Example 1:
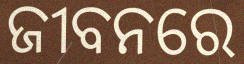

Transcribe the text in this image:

ଜୀବନରେ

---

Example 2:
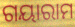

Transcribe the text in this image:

ଗୟାରାମ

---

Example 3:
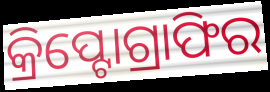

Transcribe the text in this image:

କ୍ରିପ୍ଟୋଗ୍ରାଫିର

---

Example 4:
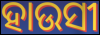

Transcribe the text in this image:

ହାଉସୀ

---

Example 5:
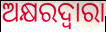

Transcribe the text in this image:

ଅକ୍ଷରଦ୍ଵାରା